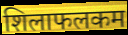
शिलाफलकम